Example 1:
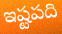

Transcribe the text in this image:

ఇష్టపది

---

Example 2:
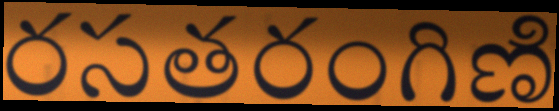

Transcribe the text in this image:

రసతరంగిణి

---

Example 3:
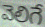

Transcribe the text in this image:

వెలిగే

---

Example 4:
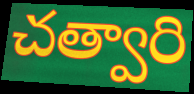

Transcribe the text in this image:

చత్వారి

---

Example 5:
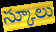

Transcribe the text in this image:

స్కూలు